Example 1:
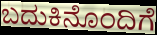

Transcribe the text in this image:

ಬದುಕಿನೊಂದಿಗೆ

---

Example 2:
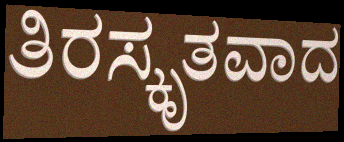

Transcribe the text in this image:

ತಿರಸ್ಕೃತವಾದ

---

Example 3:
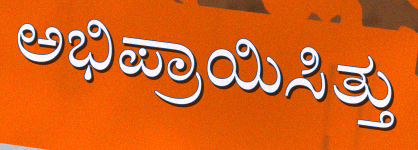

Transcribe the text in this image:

ಅಭಿಪ್ರಾಯಿಸಿತ್ತು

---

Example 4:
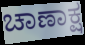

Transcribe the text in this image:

ಚಾಣಾಕ್ಷ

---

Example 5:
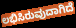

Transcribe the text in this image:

ಲಭಿಸಿರುವುದಾಗಿದೆ